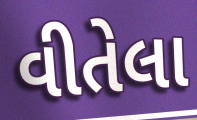
વીતેલા